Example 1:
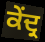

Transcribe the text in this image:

ਕੇਂਦ੍ਰ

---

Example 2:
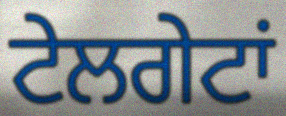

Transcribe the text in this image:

ਟੇਲਗੇਟਾਂ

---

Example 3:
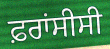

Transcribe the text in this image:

ਫ਼ਰਾਂਸੀਸੀ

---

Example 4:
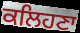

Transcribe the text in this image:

ਕਲਿਹਣਾ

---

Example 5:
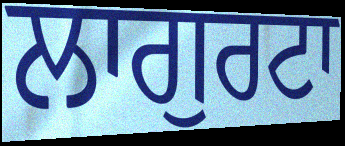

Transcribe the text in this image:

ਲਾਗੁਰਟਾ